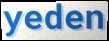
yeden